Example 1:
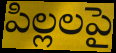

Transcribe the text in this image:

పిల్లలపై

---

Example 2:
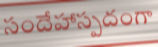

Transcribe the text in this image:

సందేహాస్పదంగా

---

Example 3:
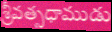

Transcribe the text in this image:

శ్రీవత్సధాముడు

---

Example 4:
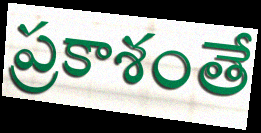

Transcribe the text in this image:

ప్రకాశంతే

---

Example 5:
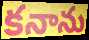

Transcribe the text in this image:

కనాను